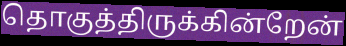
தொகுத்திருக்கின்றேன்